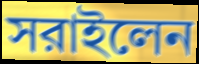
সরাইলেন